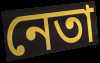
নেতা